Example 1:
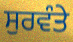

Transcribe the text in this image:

ਸੁਰਵੰਤੇ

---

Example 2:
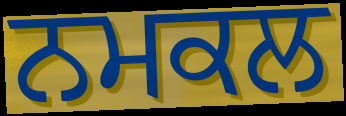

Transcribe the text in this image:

ਨਮਕਲ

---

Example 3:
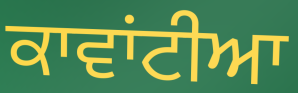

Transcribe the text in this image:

ਕਾਵਾਂਟੀਆ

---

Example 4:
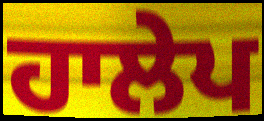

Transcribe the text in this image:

ਹਾਲੇਪ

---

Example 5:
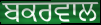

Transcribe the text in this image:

ਬਕਰਵਾਲ